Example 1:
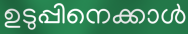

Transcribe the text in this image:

ഉടുപ്പിനെക്കാൾ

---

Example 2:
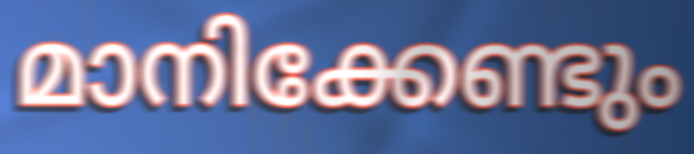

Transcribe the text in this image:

മാനിക്കേണ്ടും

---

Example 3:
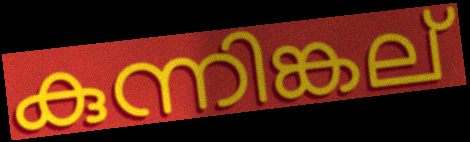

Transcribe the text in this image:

കുന്നിങ്കല്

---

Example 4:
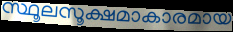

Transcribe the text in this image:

സ്ഥൂലസൂക്ഷമാകാരമായ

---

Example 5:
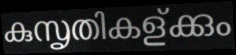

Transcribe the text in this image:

കുസൃതികള്ക്കും